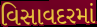
વિસાવદરમાં